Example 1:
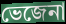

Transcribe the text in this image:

ভেজেনা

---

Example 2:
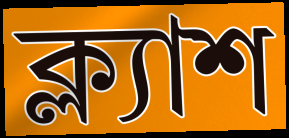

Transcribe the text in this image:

ক্ল্যাশ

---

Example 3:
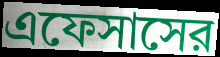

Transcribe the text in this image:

এফেসাসের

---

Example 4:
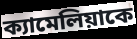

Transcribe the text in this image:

ক্যামেলিয়াকে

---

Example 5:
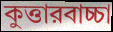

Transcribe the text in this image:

কুত্তারবাচ্চা